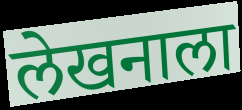
लेखनाला